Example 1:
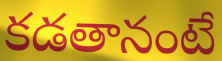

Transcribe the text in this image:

కడతానంటే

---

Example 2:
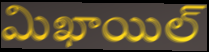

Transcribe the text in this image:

మిఖాయిల్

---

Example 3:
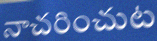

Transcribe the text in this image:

నాచరించుట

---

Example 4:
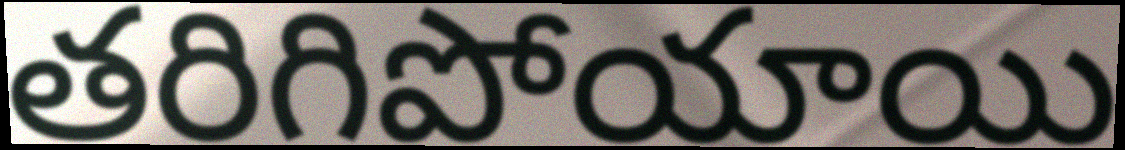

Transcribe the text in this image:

తరిగిపోయాయి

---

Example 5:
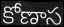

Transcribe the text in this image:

కోణాస